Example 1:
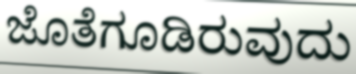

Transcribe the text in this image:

ಜೊತೆಗೂಡಿರುವುದು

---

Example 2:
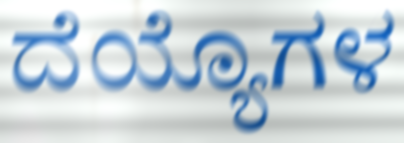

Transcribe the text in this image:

ದೆಯ್ಯೊಗಳ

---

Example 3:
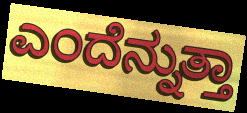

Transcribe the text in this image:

ಎಂದೆನ್ನುತ್ತಾ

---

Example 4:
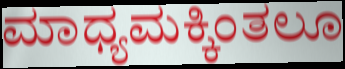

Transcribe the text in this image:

ಮಾಧ್ಯಮಕ್ಕಿಂತಲೂ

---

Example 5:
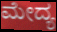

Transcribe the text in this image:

ಮೇದ್ಯ